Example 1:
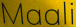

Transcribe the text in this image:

Maali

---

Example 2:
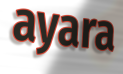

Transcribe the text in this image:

ayara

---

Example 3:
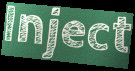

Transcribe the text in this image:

Inject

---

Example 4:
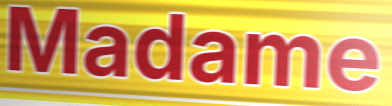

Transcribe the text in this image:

Madame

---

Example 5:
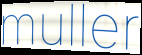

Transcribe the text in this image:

muller